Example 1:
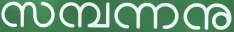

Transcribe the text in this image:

സമ്പന്നനു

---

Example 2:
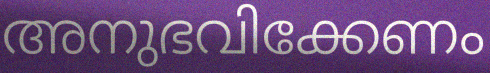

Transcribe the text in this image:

അനുഭവിക്കേണം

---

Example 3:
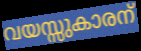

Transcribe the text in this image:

വയസ്സുകാരന്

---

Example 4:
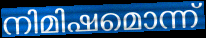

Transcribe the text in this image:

നിമിഷമൊന്ന്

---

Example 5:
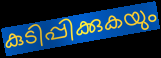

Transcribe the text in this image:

കുടിപ്പിക്കുകയും